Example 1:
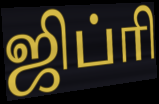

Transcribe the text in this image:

ஜிப்ரி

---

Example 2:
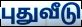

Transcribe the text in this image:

புதுவீடு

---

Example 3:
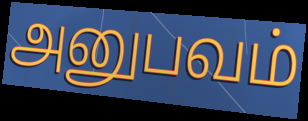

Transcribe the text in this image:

அனுபவம்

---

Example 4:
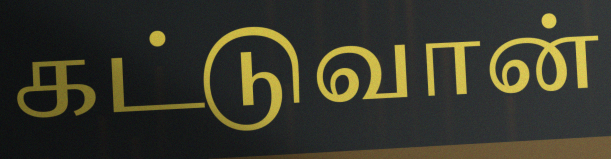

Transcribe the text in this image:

கட்டுவான்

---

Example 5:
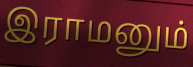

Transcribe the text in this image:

இராமனும்